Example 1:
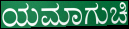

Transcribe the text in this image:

ಯಮಾಗುಚಿ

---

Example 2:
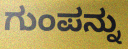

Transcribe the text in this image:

ಗುಂಪನ್ನು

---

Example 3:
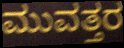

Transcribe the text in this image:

ಮುವತ್ತರ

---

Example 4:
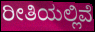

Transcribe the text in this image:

ರೀತಿಯಲ್ಲಿವೆ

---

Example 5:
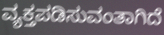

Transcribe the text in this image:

ವ್ಯಕ್ತಪಡಿಸುವಂತಾಗಿದೆ